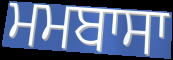
ਮਮਬਾਸਾ